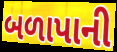
બળાપાની